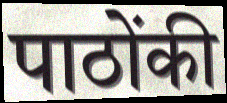
पाठोंकी